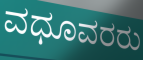
ವಧೂವರರು